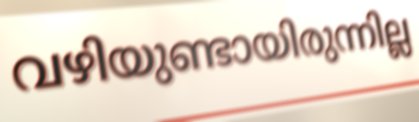
വഴിയുണ്ടായിരുന്നില്ല